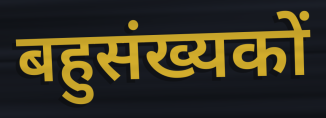
बहुसंख्यकों